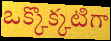
ఒక్కొక్కటిగా